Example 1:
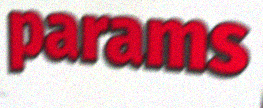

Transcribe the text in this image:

params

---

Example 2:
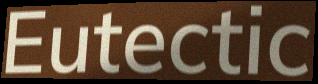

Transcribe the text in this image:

Eutectic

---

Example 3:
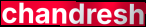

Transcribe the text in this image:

chandresh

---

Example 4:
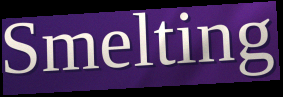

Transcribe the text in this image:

Smelting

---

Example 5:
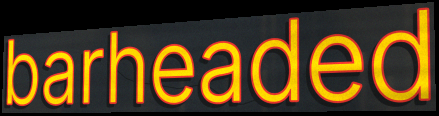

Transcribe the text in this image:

barheaded